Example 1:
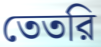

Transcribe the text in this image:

তেতরি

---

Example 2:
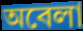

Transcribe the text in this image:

অবেলা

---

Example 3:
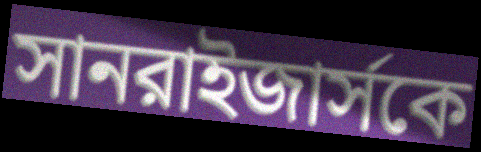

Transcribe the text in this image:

সানরাইজার্সকে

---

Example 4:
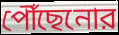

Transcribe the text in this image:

পৌঁছেনোর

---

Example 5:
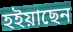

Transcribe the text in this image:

হইয়াছেন